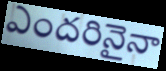
ఎందరినైనా